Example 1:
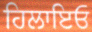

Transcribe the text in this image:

ਹਿਲਾਇਓ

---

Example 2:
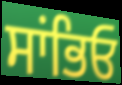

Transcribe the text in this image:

ਸਾਂਭਿਓ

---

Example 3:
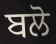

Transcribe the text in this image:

ਬਲੋ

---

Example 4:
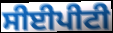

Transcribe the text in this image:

ਸੀਈਪੀਟੀ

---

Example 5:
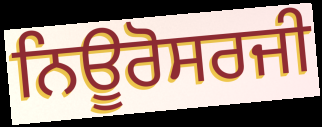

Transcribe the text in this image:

ਨਿਊਰੋਸਰਜੀ